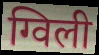
ग्विली